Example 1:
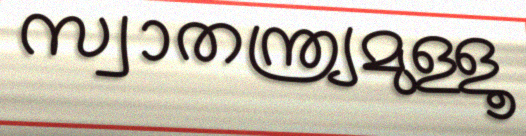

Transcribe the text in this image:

സ്വാതന്ത്ര്യമുള്ളൂ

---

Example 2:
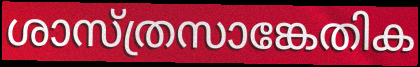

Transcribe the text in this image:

ശാസ്ത്രസാങ്കേതിക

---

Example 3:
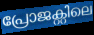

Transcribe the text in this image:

പ്രോജക്റ്റിലെ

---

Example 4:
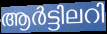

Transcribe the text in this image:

ആർട്ടിലറി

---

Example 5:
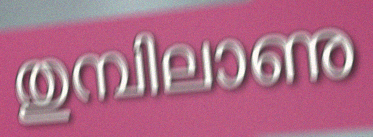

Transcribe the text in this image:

തുമ്പിലാണു